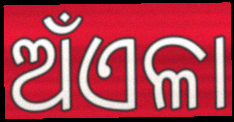
ଅଁଏଳା